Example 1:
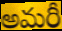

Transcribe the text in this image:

అమరీ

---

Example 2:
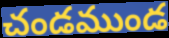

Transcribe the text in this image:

చండముండ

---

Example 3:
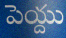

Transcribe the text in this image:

పెయ్దు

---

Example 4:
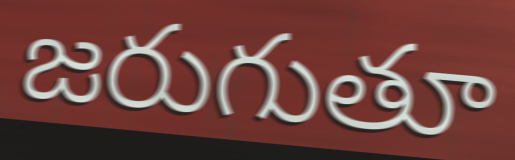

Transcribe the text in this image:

జరుగుతూ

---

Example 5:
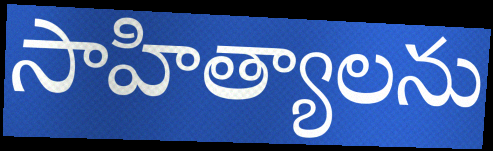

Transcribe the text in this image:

సాహిత్యాలను